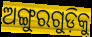
ଅଙ୍ଗୁରଗୁଡ଼ିକୁ